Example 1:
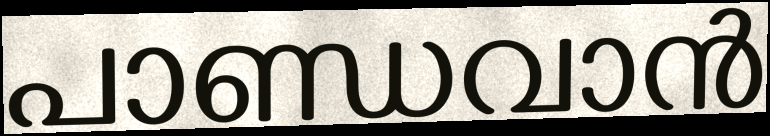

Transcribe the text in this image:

പാണ്ഡവാൻ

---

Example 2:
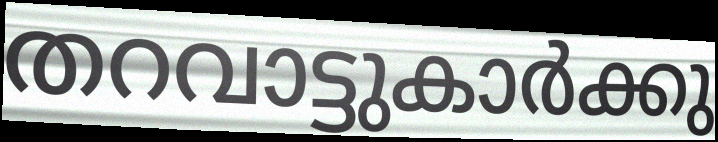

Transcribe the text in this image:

തറവാട്ടുകാർക്കു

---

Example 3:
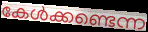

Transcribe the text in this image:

കേൾക്കണ്ടെന്ന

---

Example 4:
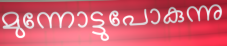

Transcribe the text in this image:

മുന്നോട്ടുപോകുന്നു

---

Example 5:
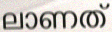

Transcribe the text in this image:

ലാണത്